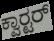
ಕ್ವಾರ‍್ಟರ್